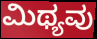
ಮಿಥ್ಯವು